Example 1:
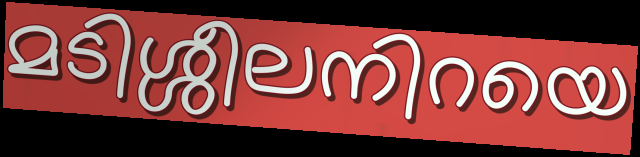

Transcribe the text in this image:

മടിശ്ശീലനിറയെ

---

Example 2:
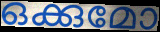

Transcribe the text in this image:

ഒക്കുമോ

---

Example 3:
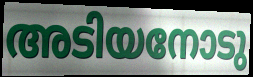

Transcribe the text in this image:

അടിയനോടു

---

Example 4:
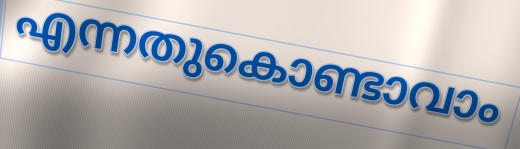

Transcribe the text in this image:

എന്നതുകൊണ്ടാവാം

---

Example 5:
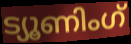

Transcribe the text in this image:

ട്യൂണിംഗ്